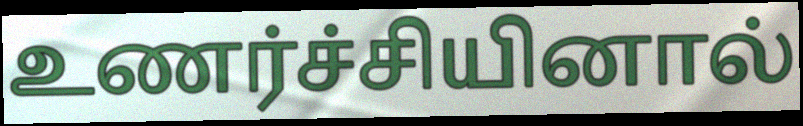
உணர்ச்சியினால்